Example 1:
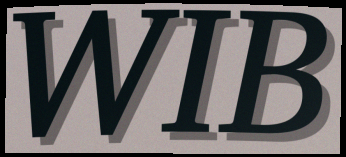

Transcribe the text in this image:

WIB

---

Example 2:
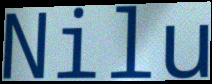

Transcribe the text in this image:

Nilu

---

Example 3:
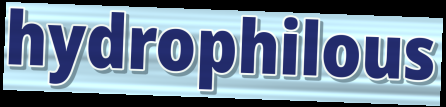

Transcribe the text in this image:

hydrophilous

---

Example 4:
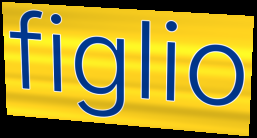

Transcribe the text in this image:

figlio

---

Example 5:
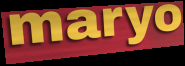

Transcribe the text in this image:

maryo